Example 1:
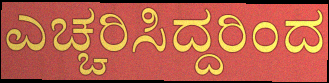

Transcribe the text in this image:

ಎಚ್ಚರಿಸಿದ್ದರಿಂದ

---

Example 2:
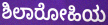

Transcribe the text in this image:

ಶಿಲಾರೋಹಿಯ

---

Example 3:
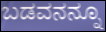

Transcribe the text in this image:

ಬಡವನನ್ನೂ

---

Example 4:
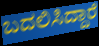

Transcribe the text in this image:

ಬದಲಿಸಿದ್ದಾರೆ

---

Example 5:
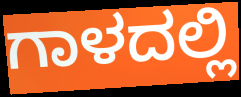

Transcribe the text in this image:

ಗಾಳದಲ್ಲಿ